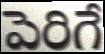
పెరిగే